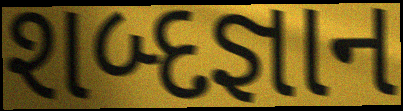
શબ્દજ્ઞાન